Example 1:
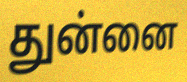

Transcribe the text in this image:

துன்னை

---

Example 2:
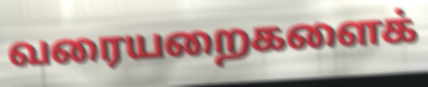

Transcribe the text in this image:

வரையறைகளைக்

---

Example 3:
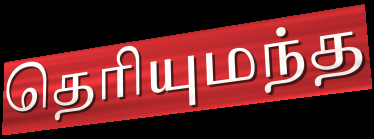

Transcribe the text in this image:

தெரியுமந்த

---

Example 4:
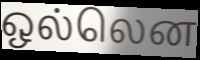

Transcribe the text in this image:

ஒல்லென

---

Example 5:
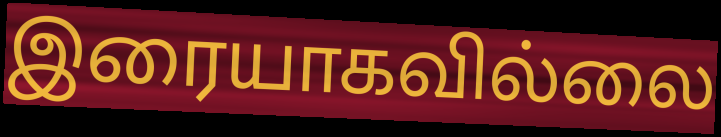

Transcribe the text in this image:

இரையாகவில்லை